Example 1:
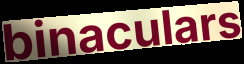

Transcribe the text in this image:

binaculars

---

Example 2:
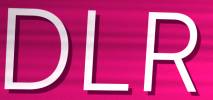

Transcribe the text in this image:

DLR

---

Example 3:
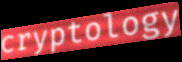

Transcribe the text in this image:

cryptology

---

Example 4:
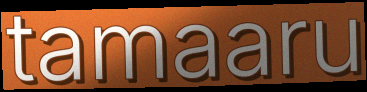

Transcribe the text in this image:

tamaaru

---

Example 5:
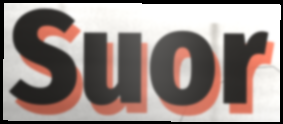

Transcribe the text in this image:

Suor